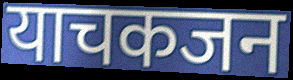
याचकजन